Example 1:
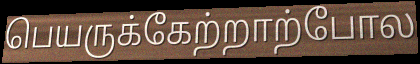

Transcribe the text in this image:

பெயருக்கேற்றாற்போல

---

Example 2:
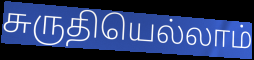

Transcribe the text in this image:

சுருதியெல்லாம்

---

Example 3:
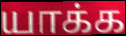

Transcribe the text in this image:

யாக்க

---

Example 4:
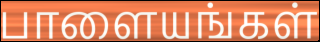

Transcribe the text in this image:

பாளையங்கள்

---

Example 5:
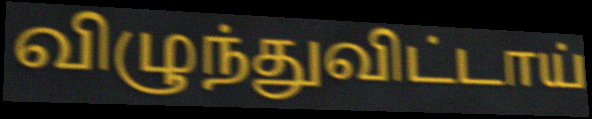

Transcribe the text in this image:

விழுந்துவிட்டாய்